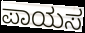
ಪಾಯಸ